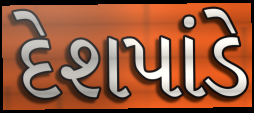
દેશપાંડે